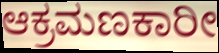
ಆಕ್ರಮಣಕಾರೀ